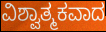
ವಿಶ್ವಾತ್ಮಕವಾದ